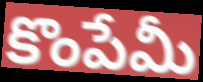
కొంపేమీ